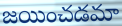
జయించడమా